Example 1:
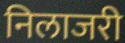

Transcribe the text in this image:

निलाजरी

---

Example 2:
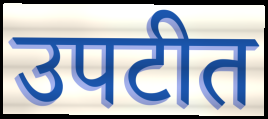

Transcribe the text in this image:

उपटीत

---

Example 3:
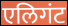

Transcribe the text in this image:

एलिगंट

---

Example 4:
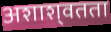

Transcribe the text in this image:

अशाश्वतता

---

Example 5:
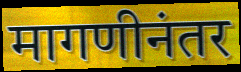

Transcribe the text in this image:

मागणीनंतर